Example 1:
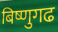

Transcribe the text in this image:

बिष्णुगढ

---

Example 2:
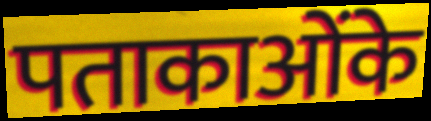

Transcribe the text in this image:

पताकाओंके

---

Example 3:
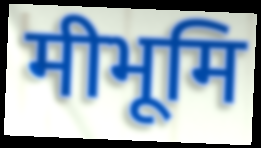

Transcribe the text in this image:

मीभूमि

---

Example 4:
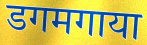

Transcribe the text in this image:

डगमगाया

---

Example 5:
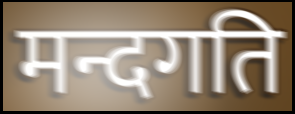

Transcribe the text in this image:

मन्दगति